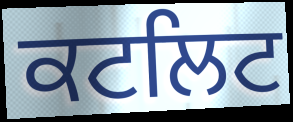
ਕਟਲਿਟ